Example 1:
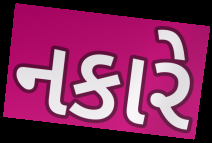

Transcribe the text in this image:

નકારે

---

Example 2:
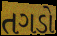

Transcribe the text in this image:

તગડો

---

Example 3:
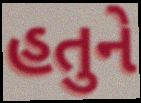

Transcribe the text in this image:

હતુને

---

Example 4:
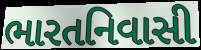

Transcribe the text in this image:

ભારતનિવાસી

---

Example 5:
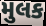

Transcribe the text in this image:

મુલક